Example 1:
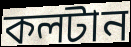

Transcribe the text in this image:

কলটান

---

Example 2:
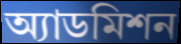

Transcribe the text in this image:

অ্যাডমিশন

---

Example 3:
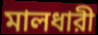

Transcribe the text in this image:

মালধারী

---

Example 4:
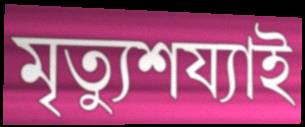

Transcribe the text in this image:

মৃত্যুশয্যাই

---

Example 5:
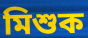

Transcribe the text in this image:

মিশুক